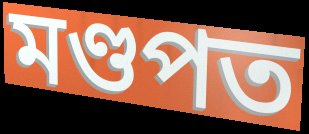
মণ্ডপত